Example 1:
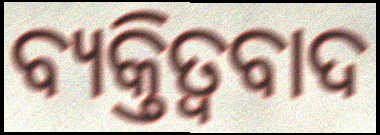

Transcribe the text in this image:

ବ୍ୟକ୍ତିତ୍ବବାଦ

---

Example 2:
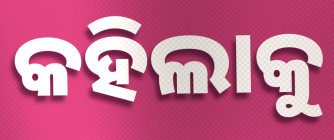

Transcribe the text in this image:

କହିଲାକୁ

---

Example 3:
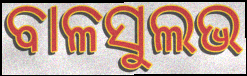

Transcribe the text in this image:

ବାଳସୁଲଭ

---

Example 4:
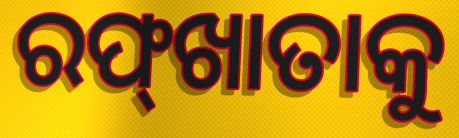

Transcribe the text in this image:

ରଫ୍‌ଖାତାକୁ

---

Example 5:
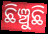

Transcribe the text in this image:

ଛିଞ୍ଚୁଛି